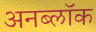
अनब्लॉक